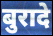
बुरादे